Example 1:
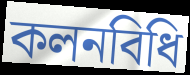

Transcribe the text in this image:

কলনবিধি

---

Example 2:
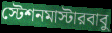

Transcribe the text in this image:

স্টেশনমাস্টারবাবু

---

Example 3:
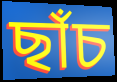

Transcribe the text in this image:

ছাঁচ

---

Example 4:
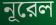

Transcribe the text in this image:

নূরেল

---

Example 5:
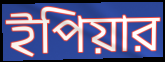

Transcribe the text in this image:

ইপিয়ার